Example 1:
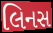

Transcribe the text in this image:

લિનસ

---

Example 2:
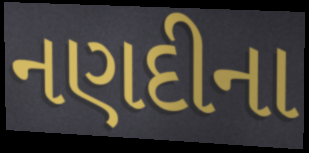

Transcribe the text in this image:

નણદીના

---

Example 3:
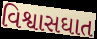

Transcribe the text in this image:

વિશ્વાસઘાત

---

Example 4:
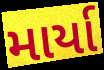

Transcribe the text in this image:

માર્યા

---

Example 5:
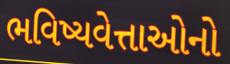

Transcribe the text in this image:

ભવિષ્યવેત્તાઓનો